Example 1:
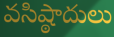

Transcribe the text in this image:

వసిష్ఠాదులు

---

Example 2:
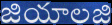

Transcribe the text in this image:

జియాలజి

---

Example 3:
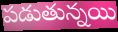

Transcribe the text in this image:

పడుతున్నయి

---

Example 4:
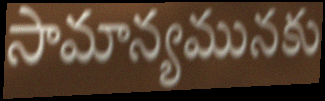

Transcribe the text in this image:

సామాన్యమునకు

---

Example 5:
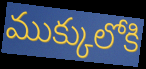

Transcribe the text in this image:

ముక్కులోకి